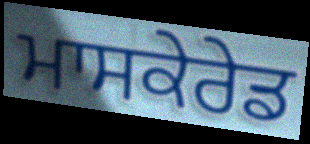
ਮਾਸਕੇਰੇਡ